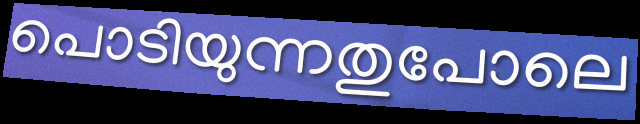
പൊടിയുന്നതുപോലെ